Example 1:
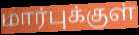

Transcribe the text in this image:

மார்புக்குள்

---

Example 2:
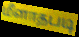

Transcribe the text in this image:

மீளாதபடி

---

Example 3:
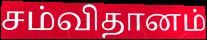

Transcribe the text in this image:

சம்விதானம்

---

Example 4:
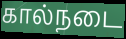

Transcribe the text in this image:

கால்நடை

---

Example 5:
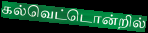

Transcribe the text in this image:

கல்வெட்டொன்றில்